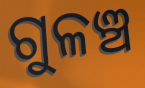
ଗୁଳଞ୍ଚ